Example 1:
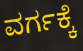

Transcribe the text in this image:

ವರ್ಗಕ್ಕೆ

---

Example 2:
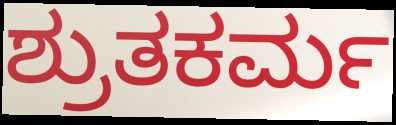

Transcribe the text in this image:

ಶ್ರುತಕರ್ಮ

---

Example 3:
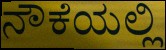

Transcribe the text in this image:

ನೌಕೆಯಲ್ಲಿ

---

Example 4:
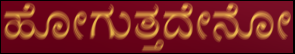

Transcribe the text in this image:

ಹೋಗುತ್ತದೇನೋ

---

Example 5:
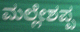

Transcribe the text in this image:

ಮಲ್ಲೇಶಪ್ಪ